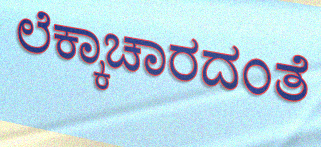
ಲೆಕ್ಕಾಚಾರದಂತೆ